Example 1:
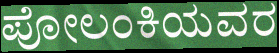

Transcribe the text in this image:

ಪೋಲಂಕಿಯವರ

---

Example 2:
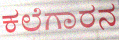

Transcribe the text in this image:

ಕಲೆಗಾರನ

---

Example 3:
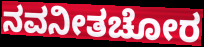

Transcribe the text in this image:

ನವನೀತಚೋರ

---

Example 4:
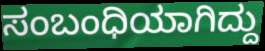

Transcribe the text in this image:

ಸಂಬಂಧಿಯಾಗಿದ್ದು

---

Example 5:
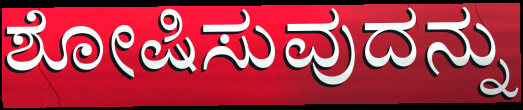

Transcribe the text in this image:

ಶೋಷಿಸುವುದನ್ನು